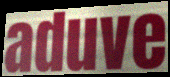
aduve